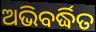
ଅଭିବର୍ଦ୍ଧିତ